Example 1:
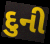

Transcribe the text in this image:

દુની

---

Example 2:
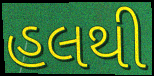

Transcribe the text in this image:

હલથી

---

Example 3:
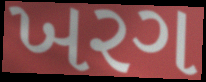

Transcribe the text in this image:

ખરગ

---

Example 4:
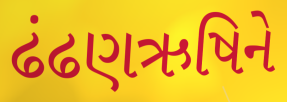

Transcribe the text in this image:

ઢંઢણઋષિને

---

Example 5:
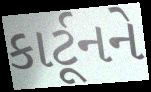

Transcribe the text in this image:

કાર્ટૂનને